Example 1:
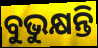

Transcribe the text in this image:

ବୁଭୁକ୍ଷନ୍ତି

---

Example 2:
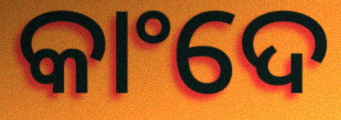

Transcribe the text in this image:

କାଂଦେ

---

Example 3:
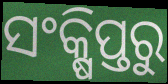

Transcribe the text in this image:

ସଂକ୍ଷିପ୍ତରୁ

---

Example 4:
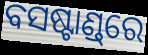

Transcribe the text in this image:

ବସଷ୍ଟାଣ୍ଡ୍‌ରେ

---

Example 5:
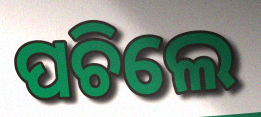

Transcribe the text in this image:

ପଚିଲେ